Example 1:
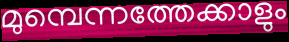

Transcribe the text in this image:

മുമ്പെന്നത്തേക്കാളും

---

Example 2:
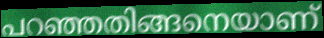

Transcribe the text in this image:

പറഞ്ഞതിങ്ങനെയാണ്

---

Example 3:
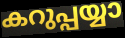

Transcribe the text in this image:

കറുപ്പയ്യാ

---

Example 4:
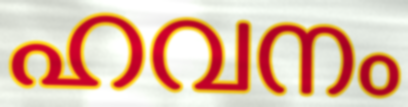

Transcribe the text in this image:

ഹവനം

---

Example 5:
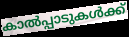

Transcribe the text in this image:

കാൽപ്പാടുകൾക്ക്